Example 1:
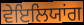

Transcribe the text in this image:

ਵੇਇਲਿਯਾਂਗ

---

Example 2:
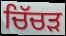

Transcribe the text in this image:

ਚਿੱਚੜ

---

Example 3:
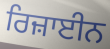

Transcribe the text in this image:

ਰਿਜ਼ਾਈਨ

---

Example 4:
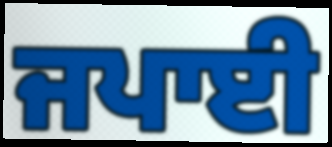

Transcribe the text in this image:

ਜਪਾਈ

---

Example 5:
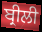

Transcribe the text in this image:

ਬ੍ਰੀਲੀ